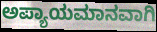
ಅಪ್ಯಾಯಮಾನವಾಗಿ